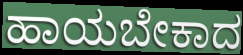
ಹಾಯಬೇಕಾದ